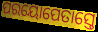
ପରୟୋପେତାସ୍ତେ